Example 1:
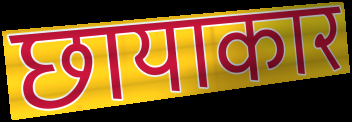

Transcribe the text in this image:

छायाकार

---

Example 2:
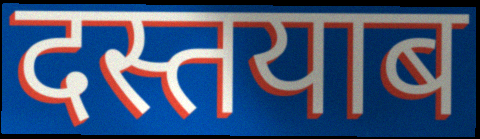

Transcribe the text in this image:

दस्तयाब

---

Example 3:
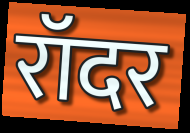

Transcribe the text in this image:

रॉदर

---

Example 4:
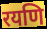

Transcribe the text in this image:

रयणि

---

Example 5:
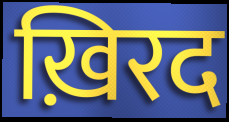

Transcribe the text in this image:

ख़िरद